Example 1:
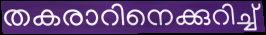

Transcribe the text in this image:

തകരാറിനെക്കുറിച്ച്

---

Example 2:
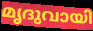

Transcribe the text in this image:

മൃദുവായി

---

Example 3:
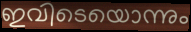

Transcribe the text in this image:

ഇവിടെയൊന്നും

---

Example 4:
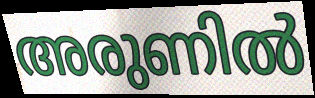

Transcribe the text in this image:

അരുണിൽ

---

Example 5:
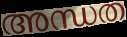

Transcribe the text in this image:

അന്ധത